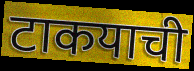
टाकयाची